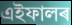
এইফালৰ